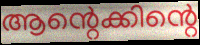
ആന്റെക്കിന്റെ